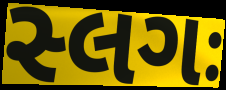
સ્લગઃ